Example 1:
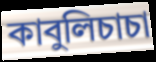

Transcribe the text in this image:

কাবুলিচাচা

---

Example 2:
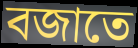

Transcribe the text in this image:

বজাতে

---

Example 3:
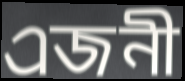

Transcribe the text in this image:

এজনী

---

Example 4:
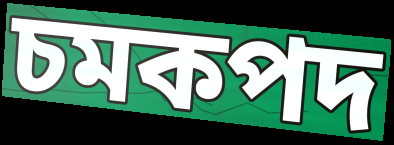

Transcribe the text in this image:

চমকপদ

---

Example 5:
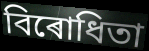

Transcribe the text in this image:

বিৰোধিতা